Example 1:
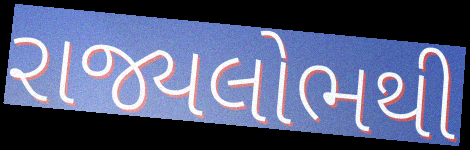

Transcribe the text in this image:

રાજ્યલોભથી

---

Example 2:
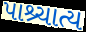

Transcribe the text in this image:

પાશ્ર્ચાત્ય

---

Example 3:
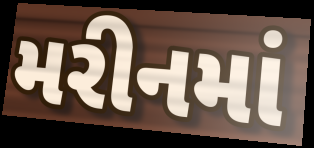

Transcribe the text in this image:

મરીનમાં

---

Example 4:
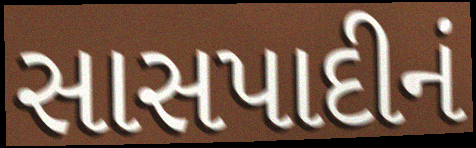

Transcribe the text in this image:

સાસપાદીનં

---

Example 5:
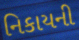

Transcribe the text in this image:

નિકાયની